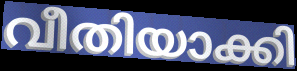
വീതിയാക്കി